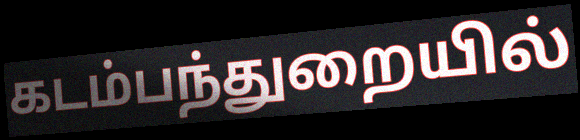
கடம்பந்துறையில்